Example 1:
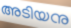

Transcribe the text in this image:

അടിയനു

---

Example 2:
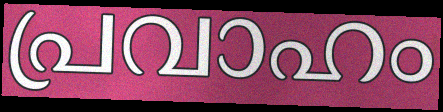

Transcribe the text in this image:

പ്രവാഹം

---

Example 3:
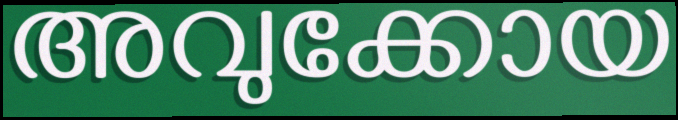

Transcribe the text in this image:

അവുക്കോയ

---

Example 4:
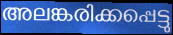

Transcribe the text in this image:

അലങ്കരിക്കപ്പെട്ടു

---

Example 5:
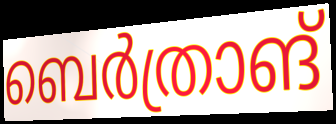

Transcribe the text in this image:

ബെർത്രാങ്